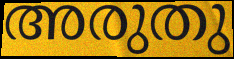
അരുതു